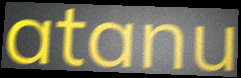
atanu